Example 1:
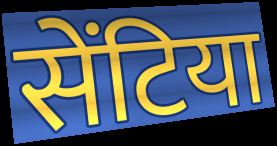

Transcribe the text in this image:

सेंटिया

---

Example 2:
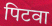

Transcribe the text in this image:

पिटवा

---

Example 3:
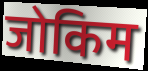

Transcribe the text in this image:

जोकिम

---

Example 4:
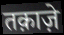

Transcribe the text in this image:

तक़ाज़े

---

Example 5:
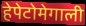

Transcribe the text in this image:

हेपेटोमेगाली